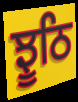
ਝੂਠਿ